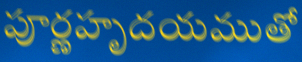
పూర్ణహృదయముతో